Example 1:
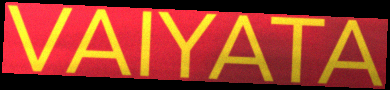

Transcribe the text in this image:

VAIYATA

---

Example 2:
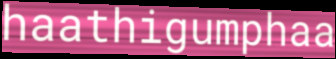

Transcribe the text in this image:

haathigumphaa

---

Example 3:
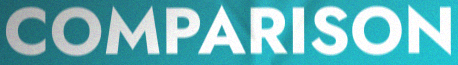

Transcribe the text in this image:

COMPARISON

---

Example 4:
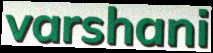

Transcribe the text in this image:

varshani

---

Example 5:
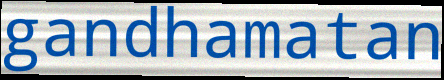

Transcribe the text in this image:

gandhamatan